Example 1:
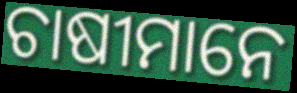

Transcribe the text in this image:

ଚାଷୀମାନେ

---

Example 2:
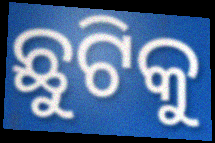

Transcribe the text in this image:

ଛୁଟିକୁ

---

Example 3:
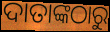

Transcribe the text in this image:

ଦାତାଙ୍କଠାରୁ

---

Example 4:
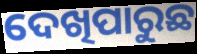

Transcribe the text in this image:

ଦେଖିପାରୁଛ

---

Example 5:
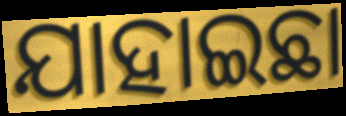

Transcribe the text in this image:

ଯାହାଇଛା